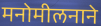
मनोमीलनाने